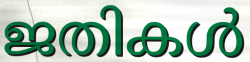
ജതികൾ